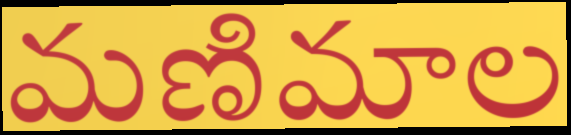
మణిమాల